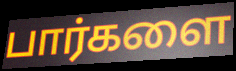
பார்களை